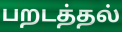
பறடத்தல்